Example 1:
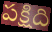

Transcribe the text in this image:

పక్షిది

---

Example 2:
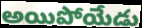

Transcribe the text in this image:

అయిపోయేడు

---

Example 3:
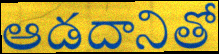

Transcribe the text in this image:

ఆడదానితో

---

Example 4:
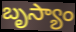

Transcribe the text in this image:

బృస్యాం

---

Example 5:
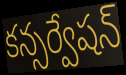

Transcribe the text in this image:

కన్సర్వేషన్